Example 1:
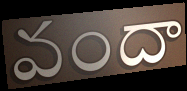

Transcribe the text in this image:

వందా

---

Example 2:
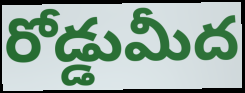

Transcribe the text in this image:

రోడ్డుమీద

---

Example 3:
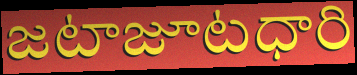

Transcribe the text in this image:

జటాజూటధారి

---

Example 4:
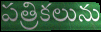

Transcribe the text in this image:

పత్రికలును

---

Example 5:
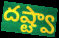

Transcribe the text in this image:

దష్ట్వా